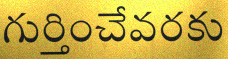
గుర్తించేవరకు